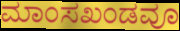
ಮಾಂಸಖಂಡವೂ